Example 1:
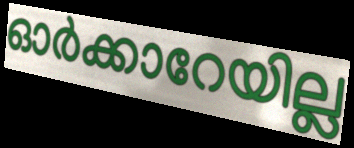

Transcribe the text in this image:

ഓർക്കാറേയില്ല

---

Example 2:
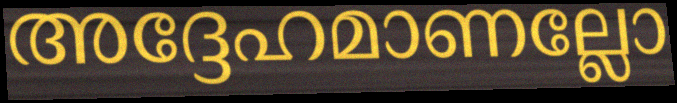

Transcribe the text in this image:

അദ്ദേഹമാണല്ലോ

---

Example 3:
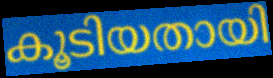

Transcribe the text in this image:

കൂടിയതായി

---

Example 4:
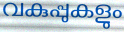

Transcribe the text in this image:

വകുപ്പുകളും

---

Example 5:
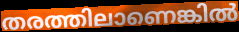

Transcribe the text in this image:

തരത്തിലാണെങ്കിൽ